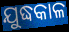
ଯୁଦ୍ଧକାଳ